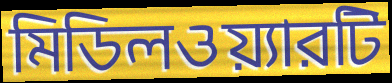
মিডিলওয়্যারটি